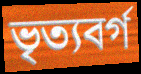
ভৃত্যবর্গ